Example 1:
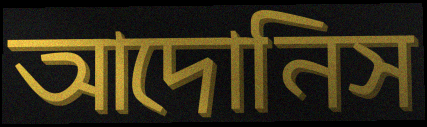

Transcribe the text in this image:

আদোনিস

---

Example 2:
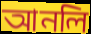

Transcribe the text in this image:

আনলি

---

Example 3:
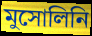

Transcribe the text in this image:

মুসোলিনি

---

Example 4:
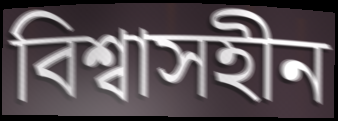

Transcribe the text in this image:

বিশ্বাসহীন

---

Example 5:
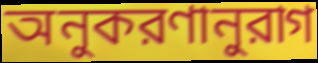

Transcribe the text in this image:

অনুকরণানুরাগ